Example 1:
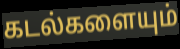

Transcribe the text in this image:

கடல்களையும்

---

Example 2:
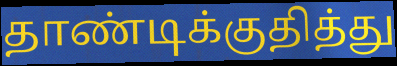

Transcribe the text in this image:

தாண்டிக்குதித்து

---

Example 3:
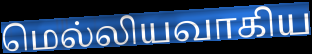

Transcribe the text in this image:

மெல்லியவாகிய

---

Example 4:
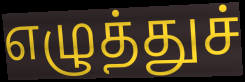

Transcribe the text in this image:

எழுத்துச்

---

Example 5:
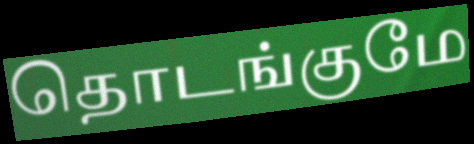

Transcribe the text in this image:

தொடங்குமே